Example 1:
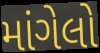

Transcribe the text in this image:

માંગેલો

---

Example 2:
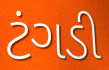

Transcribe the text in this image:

ટંગડી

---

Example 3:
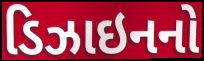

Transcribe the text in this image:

ડિઝાઇનનો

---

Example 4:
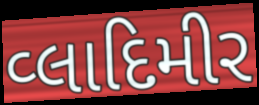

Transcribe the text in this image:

વ્લાદિમીર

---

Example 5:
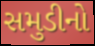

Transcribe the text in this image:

સમુડીનો